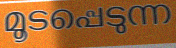
മൂടപ്പെടുന്ന